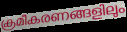
ക്രമീകരണങ്ങളിലും